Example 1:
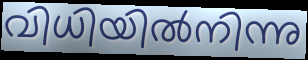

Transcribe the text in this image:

വിധിയിൽനിന്നു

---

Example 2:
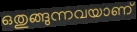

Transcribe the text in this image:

ഒതുങ്ങുന്നവയാണ്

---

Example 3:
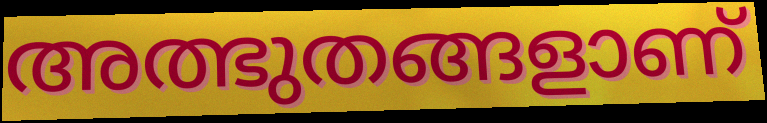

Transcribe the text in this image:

അത്ഭുതങ്ങളാണ്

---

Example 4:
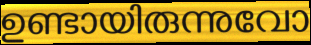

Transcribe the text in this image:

ഉണ്ടായിരുന്നുവോ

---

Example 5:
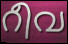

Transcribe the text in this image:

റീവ